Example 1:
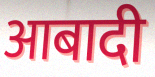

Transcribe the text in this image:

आबादी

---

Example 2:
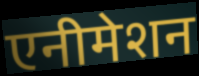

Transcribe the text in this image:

एनीमेशन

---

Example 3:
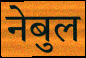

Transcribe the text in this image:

नेबुल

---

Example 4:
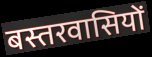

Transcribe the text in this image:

बस्तरवासियों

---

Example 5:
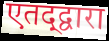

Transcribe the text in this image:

एतद्द्वारा